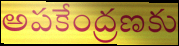
అపకేంద్రణకు